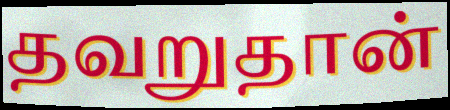
தவறுதான்